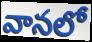
వానలో